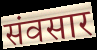
संवसार